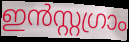
ഇൻസ്റ്റഗ്രാം